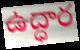
ఉద్ధార